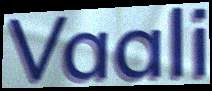
Vaali